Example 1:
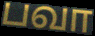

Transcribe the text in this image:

பவா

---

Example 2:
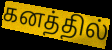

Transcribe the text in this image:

கனத்தில்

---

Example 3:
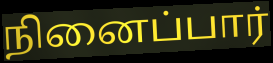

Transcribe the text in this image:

நினைப்பார்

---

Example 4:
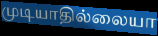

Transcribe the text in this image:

முடியாதில்லையா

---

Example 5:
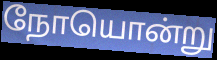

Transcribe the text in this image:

நோயொன்று